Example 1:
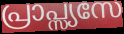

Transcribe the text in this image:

പ്രാപ്സ്യസേ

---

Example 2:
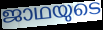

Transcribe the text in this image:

ജാഥയുടെ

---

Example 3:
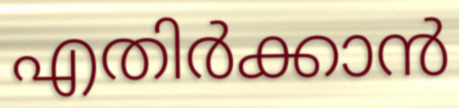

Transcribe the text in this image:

എതിർക്കാൻ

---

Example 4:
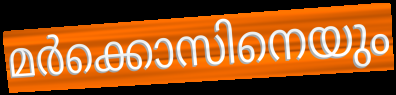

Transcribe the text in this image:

മർക്കൊസിനെയും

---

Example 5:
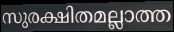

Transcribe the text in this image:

സുരക്ഷിതമല്ലാത്ത